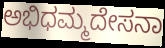
ಅಭಿಧಮ್ಮದೇಸನಾ